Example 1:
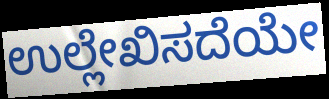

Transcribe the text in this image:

ಉಲ್ಲೇಖಿಸದೆಯೇ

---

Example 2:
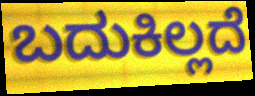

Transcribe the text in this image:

ಬದುಕಿಲ್ಲದೆ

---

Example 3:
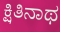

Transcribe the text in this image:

ಕ್ಷಿತಿನಾಥ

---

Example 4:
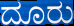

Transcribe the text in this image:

ದೂರು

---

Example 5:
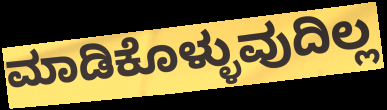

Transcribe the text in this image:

ಮಾಡಿಕೊಳ್ಳುವುದಿಲ್ಲ